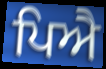
ਪਿਐ